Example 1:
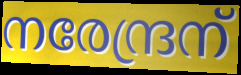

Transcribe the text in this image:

നരേന്ദ്രന്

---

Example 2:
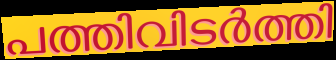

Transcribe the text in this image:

പത്തിവിടർത്തി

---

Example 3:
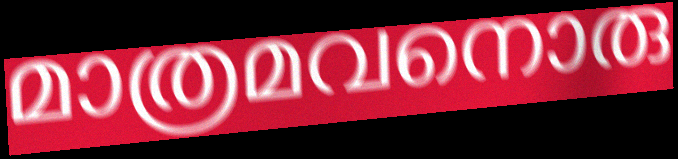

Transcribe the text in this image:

മാത്രമവനൊരു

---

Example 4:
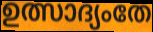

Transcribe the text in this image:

ഉത്സാദ്യംതേ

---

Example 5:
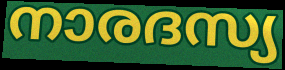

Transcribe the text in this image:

നാരദസ്യ